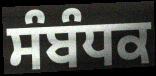
ਸੰਬੰਧਕ